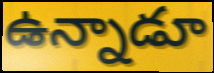
ఉన్నాడూ